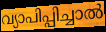
വ്യാപിപ്പിച്ചാൽ